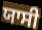
ਯਾਸੀ